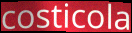
costicola